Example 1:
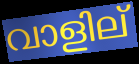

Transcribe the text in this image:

വാളില്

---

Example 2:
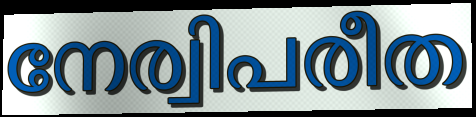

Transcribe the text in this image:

നേര്വിപരീത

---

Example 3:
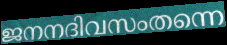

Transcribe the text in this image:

ജനനദിവസംതന്നെ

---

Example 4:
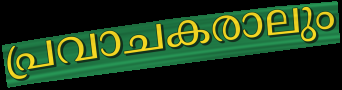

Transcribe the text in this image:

പ്രവാചകരാലും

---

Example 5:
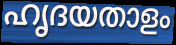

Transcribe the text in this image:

ഹൃദയതാളം